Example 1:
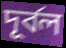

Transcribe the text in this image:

দূর্বল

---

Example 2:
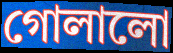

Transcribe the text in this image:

গোলালো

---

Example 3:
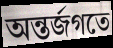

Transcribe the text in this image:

অন্তর্জগতে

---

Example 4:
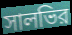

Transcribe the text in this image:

সালভির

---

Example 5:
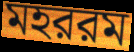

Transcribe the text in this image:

মহররম